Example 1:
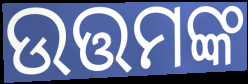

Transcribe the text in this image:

ଉତ୍ତମଙ୍କ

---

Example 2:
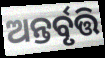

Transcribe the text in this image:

ଅନ୍ତର୍ବୃତ୍ତି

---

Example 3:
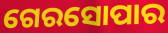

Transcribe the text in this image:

ଗେରସୋପାର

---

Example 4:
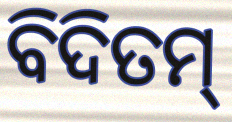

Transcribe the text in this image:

ବିଦିତମ୍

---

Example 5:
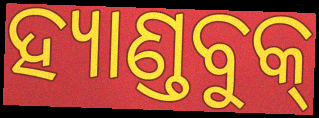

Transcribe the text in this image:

ହ୍ୟାଣ୍ଡବୁକ୍